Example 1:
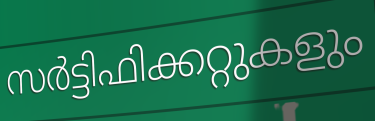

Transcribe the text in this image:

സർട്ടിഫിക്കറ്റുകളും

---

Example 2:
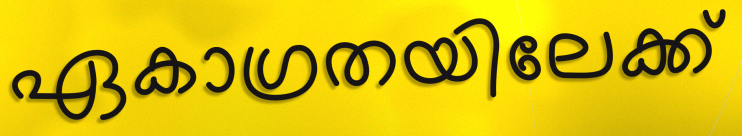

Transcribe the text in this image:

ഏകാഗ്രതയിലേക്ക്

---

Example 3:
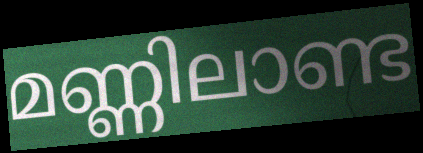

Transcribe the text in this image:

മണ്ണിലാണ്ട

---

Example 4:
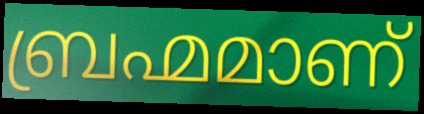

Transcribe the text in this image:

ബ്രഹ്മമാണ്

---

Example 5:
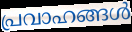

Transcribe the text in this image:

പ്രവാഹങ്ങൾ